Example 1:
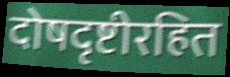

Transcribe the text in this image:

दोषदृष्टीरहित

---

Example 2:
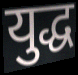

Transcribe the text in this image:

युद्ध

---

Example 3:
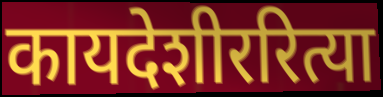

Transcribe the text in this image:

कायदेशीररित्या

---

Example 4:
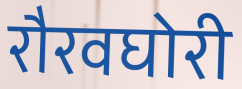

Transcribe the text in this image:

रौरवघोरी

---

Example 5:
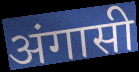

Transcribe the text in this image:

अंगासी